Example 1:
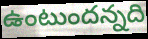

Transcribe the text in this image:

ఉంటుందన్నది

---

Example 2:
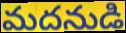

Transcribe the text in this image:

మదనుడి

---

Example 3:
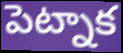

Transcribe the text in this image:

పెట్నాక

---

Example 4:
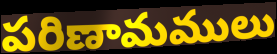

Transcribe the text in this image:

పరిణామములు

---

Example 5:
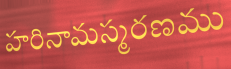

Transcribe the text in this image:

హరినామస్మరణము